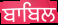
ਬਾਬਿਲ